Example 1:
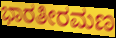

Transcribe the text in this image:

ಭಾರತೀರಮಣ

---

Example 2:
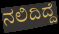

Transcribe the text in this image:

ನಲಿದಿದ್ದೆ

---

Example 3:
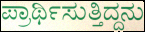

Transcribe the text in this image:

ಪ್ರಾರ್ಥಿಸುತ್ತಿದ್ದನು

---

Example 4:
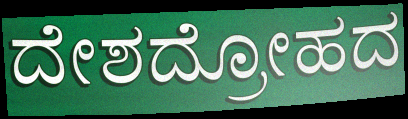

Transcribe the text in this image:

ದೇಶದ್ರೋಹದ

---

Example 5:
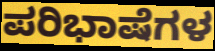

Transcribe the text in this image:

ಪರಿಭಾಷೆಗಳ